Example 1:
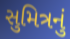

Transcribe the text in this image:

સુમિત્રનું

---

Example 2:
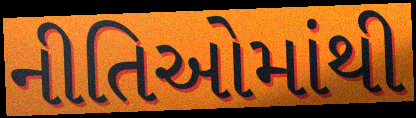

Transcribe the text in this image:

નીતિઓમાંથી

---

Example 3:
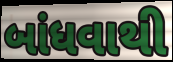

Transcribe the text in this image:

બાંધવાથી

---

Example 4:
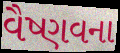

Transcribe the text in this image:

વૈષ્ણવના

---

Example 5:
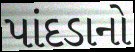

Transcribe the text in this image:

પાંદડાનો